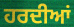
ਹਰਦੀਆਂ